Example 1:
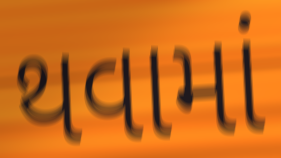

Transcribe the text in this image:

થવામાં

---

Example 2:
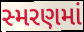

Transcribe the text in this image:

સ્મરણમાં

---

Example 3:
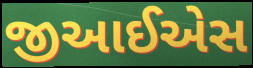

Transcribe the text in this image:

જીઆઈએસ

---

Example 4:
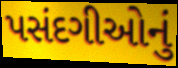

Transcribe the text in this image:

પસંદગીઓનું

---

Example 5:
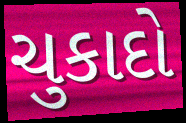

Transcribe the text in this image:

ચુકાદો